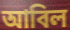
আবিল